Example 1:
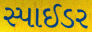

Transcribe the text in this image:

સ્પાઈડર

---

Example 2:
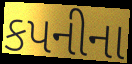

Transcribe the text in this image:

કપનીના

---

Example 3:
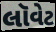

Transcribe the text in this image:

લૉવેટ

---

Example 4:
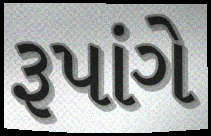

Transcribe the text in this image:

રૂપાંગે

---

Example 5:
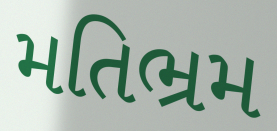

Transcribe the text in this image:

મતિભ્રમ